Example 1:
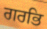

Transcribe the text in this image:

ਗਰਭਿ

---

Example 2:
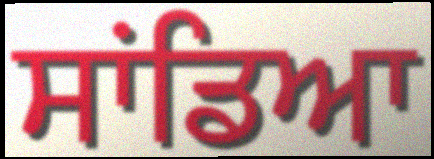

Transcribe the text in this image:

ਸਾਂਡਿਆ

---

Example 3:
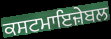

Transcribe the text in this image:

ਕਸਟਮਾਇਜ਼ੇਬਲ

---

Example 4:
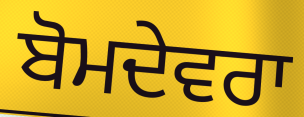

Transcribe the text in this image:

ਬੋਮਦੇਵਰਾ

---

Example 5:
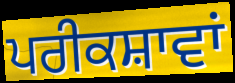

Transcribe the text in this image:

ਪਰੀਕਸ਼ਾਵਾਂ